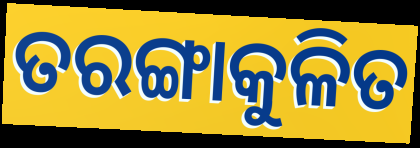
ତରଙ୍ଗାକୁଳିତ